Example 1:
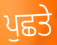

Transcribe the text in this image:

ਪੁਛਤੇ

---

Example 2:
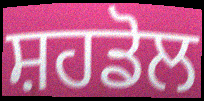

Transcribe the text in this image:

ਸ਼ਹਡੋਲ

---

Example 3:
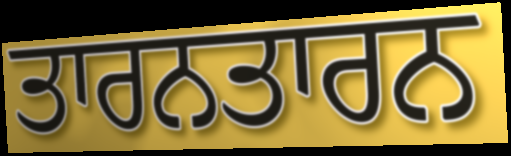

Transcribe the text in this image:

ਤਾਰਨਤਾਰਨ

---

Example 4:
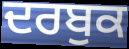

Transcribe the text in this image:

ਦਰਬੁਕ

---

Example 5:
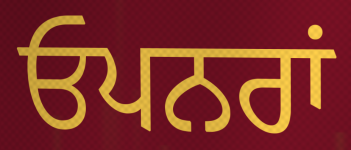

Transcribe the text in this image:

ਓਪਨਰਾਂ